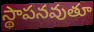
స్థాపనవుతూ